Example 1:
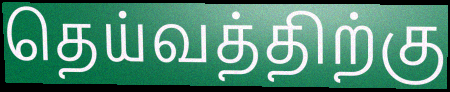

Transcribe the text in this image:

தெய்வத்திற்கு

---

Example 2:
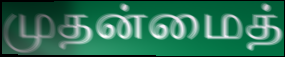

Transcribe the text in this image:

முதன்மைத்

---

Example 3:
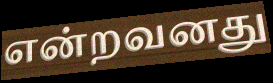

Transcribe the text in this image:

என்றவனது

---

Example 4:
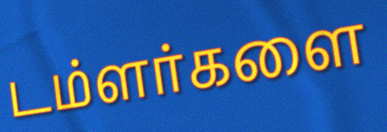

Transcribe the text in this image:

டம்ளர்களை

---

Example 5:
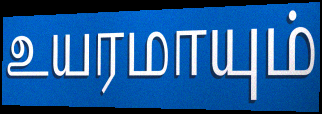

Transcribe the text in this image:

உயரமாயும்